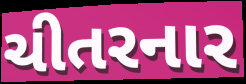
ચીતરનાર